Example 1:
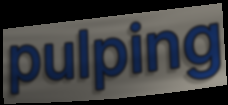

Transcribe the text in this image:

pulping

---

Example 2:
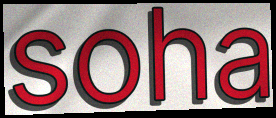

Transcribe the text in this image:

soha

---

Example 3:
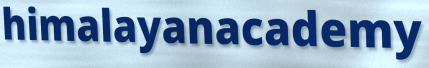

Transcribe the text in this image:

himalayanacademy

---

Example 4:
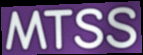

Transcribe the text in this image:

MTSS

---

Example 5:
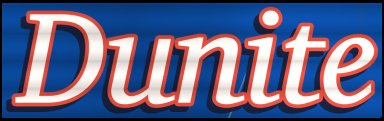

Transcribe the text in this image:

Dunite